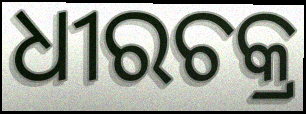
ଧୀରଚକ୍ର